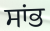
ਸਾਂਭ